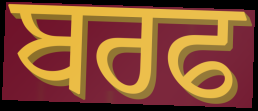
ਬਰਫ